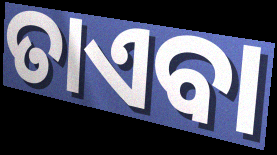
ତାଏବା